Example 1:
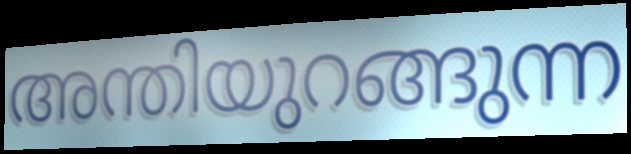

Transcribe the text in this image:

അന്തിയുറങ്ങുന്ന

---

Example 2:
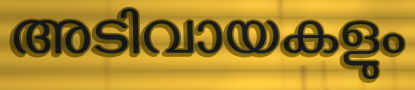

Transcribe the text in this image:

അടിവായകളും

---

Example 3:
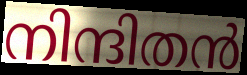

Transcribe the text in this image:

നിന്ദിതൻ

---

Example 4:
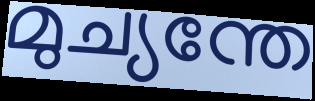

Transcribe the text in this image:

മുച്യന്തേ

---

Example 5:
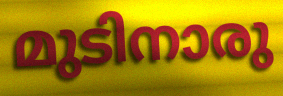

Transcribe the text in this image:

മുടിനാരു